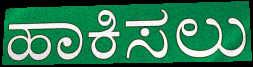
ಹಾಕಿಸಲು